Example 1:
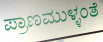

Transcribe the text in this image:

ಪ್ರಾಣಮುಳ್ಳಂತೆ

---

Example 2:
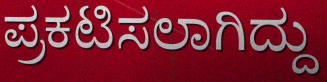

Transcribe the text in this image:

ಪ್ರಕಟಿಸಲಾಗಿದ್ದು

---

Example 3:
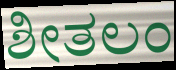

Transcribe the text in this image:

ಶೀತಲಂ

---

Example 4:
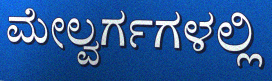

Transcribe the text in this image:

ಮೇಲ್ವರ್ಗಗಳಲ್ಲಿ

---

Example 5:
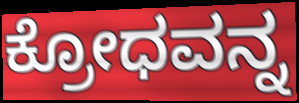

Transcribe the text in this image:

ಕ್ರೋಧವನ್ನ